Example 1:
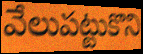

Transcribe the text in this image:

వేలుపట్టుకొని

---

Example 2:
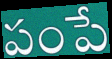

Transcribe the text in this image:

పంపే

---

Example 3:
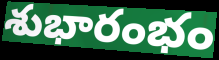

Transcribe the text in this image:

శుభారంభం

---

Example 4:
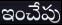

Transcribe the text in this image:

ఇంచేపు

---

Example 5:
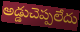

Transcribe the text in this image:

అడ్డుచెప్పలేదు